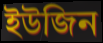
ইউজিন